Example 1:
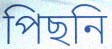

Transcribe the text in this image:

পিছনি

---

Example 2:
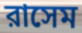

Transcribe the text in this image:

রাসেম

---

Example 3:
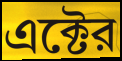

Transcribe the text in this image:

এক্টের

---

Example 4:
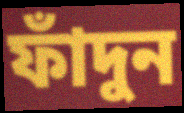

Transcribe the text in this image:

ফাঁদুন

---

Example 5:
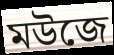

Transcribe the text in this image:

মউজে